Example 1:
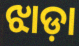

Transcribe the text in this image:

ଝାଡ଼ା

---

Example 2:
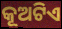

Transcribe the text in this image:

କୂଅଟିଏ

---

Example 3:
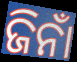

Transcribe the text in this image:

ଜିନାଁ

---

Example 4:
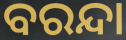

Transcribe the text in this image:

ବରନ୍ଦା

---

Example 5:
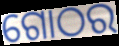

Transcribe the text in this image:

ଗୋଠର